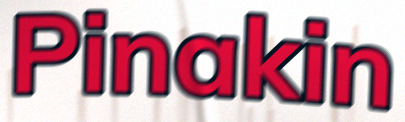
Pinakin